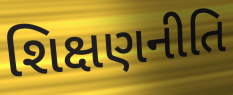
શિક્ષણનીતિ